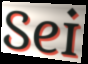
Sei